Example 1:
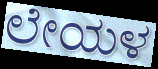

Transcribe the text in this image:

ಲೇಯಳ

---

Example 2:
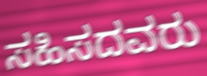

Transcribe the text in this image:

ಸಹಿಸದವರು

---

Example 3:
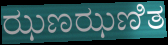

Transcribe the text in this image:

ಝಣಝಣಿತ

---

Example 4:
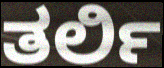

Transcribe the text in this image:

ತರ್ಲಿ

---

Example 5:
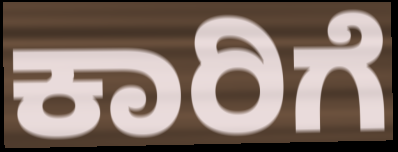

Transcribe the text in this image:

ಕಾರಿಗೆ